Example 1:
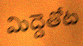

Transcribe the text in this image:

మిద్దెతోట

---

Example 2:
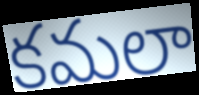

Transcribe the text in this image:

కమలా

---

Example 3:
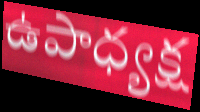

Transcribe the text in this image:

ఉపాధ్యక్ష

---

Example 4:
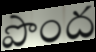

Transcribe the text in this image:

పొంద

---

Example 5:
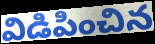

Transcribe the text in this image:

విడిపించిన